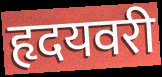
हृदयवरी